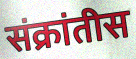
संक्रांतीस